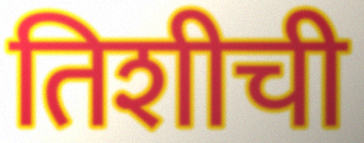
तिशीची